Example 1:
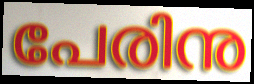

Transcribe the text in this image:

പേരിനു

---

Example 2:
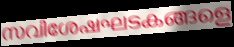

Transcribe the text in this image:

സവിശേഷഘടകങ്ങളെ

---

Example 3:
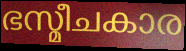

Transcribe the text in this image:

ഭസ്മീചകാര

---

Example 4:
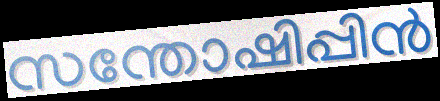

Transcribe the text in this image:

സന്തോഷിപ്പിൻ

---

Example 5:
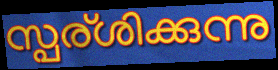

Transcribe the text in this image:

സ്പര്ശിക്കുന്നു